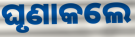
ଘୃଣାକଲେ